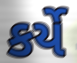
કર્યે